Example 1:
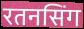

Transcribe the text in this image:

रतनसिंग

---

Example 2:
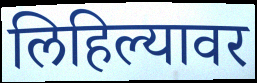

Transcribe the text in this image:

लिहिल्यावर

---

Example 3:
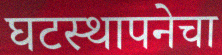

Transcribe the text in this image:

घटस्थापनेचा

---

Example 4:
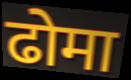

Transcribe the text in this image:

ढोमा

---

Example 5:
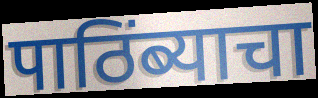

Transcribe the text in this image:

पाठिंब्याचा